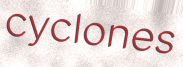
cyclones